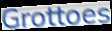
Grottoes